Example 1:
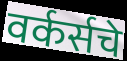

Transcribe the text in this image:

वर्कर्सचे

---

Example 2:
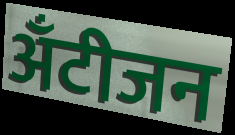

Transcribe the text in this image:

अँटीजन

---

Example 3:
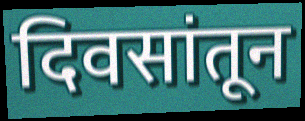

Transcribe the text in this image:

दिवसांतून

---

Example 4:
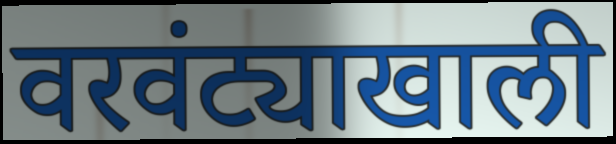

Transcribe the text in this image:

वरवंट्याखाली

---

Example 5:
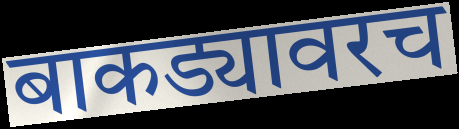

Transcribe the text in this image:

बाकड्यावरच